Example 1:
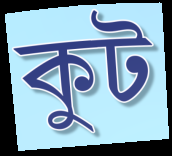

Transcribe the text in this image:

কুট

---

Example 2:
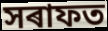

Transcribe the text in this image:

সৰাফত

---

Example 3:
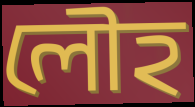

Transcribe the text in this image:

লৌহ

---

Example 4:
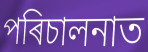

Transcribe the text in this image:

পৰিচালনাত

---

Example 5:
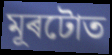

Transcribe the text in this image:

মূৰটোত